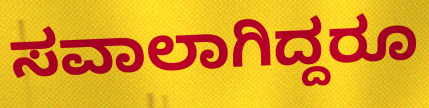
ಸವಾಲಾಗಿದ್ದರೂ